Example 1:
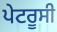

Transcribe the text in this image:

ਪੇਟਰੂਸੀ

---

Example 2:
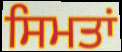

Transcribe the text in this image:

ਸਿਮਤਾਂ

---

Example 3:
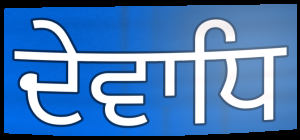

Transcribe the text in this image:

ਦੇਵਾਧਿ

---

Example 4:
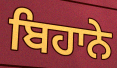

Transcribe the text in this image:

ਬਿਹਾਨੇ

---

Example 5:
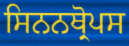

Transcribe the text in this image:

ਸਿਨਨਥ੍ਰੋਪਸ